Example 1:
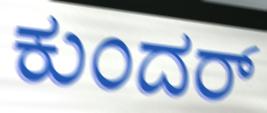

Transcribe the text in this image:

ಕುಂದರ್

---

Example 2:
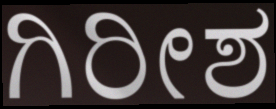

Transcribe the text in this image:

ಗಿರೀಶ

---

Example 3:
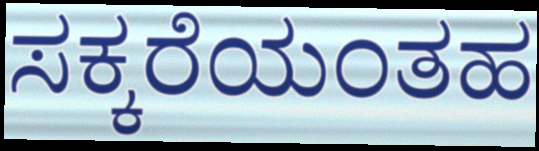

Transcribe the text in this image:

ಸಕ್ಕರೆಯಂತಹ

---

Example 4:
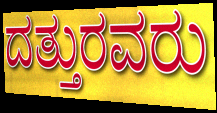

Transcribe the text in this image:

ದತ್ತುರವರು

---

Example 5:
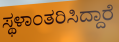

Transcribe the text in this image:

ಸ್ಥಳಾಂತರಿಸಿದ್ದಾರೆ